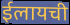
ईलायची